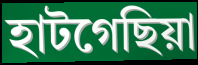
হাটগেছিয়া